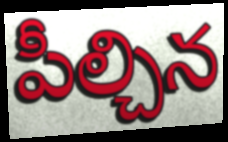
పీల్చిన